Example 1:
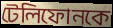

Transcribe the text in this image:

টেলিফোনকে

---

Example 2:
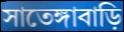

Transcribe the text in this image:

সাতেঙ্গাবাড়ি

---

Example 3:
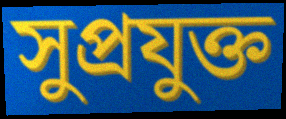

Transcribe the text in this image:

সুপ্রযুক্ত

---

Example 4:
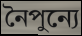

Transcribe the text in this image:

নৈপুন্যে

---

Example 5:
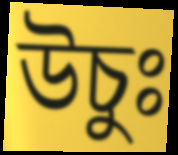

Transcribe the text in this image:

উচুঃ